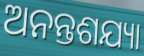
ଅନନ୍ତଶଯ୍ୟା